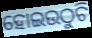
ହୋଇଉଠୁଚି